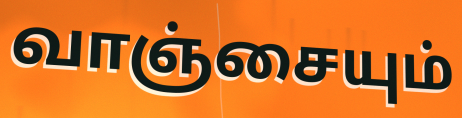
வாஞ்சையும்